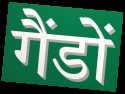
गैंडों